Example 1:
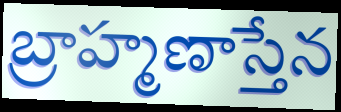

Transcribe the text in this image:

బ్రాహ్మణాస్తేన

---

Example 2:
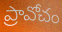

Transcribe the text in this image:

ప్రావోచం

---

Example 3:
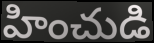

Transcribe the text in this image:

హించుడి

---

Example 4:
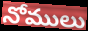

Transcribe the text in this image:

నోములు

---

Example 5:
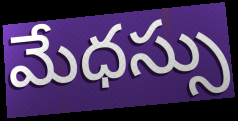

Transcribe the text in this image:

మేధస్సు